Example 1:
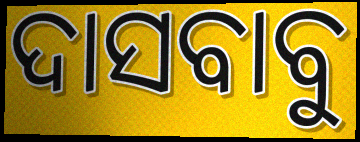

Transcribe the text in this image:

ଦାସବାବୁ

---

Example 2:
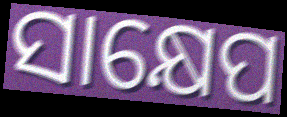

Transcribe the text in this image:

ସାକ୍ଷେପ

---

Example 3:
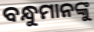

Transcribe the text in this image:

ବନ୍ଧୁମାନଙ୍କୁ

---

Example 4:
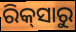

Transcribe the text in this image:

ରିକ୍‌ସାରୁ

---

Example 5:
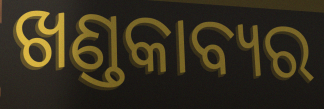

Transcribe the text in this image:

ଖଣ୍ଡକାବ୍ୟର